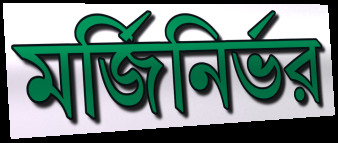
মর্জিনির্ভর